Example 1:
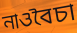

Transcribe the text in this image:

নাওবৈচা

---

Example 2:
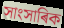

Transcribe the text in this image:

সাংসাৰিক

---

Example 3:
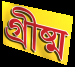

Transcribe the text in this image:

গ্ৰীষ্ম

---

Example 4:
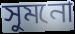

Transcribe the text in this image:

সুমনো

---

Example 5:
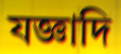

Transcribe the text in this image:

যজ্ঞাদি